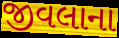
જીવલાના